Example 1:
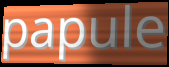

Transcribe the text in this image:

papule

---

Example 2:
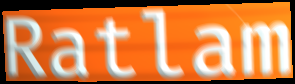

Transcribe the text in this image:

Ratlam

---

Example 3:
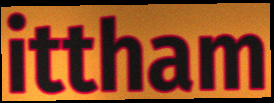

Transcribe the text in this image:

ittham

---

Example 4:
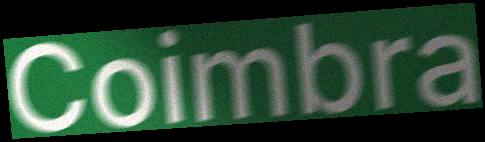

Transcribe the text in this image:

Coimbra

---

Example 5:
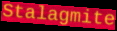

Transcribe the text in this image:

Stalagmite